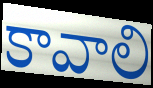
కావాలి